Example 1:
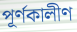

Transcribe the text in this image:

পূর্ণকালীণ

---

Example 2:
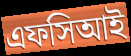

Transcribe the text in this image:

এফসিআই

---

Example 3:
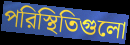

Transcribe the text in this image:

পরিস্থিতিগুলো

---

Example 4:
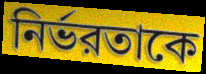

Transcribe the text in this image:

নির্ভরতাকে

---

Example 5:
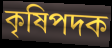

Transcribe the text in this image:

কৃষিপদক